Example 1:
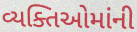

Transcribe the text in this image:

વ્યક્તિઓમાંની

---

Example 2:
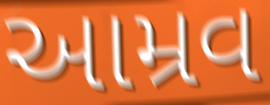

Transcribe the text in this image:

આમ્રવ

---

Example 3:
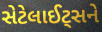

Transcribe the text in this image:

સેટેલાઈટ્સને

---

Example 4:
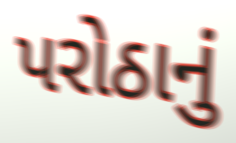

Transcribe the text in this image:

પરોઠાનું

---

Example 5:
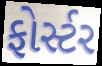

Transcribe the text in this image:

ફોર્સ્ટર